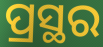
ପ୍ରସ୍ଥର